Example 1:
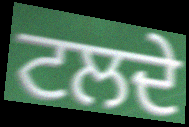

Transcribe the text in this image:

ਟਲਦੇ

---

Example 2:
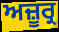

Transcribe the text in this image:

ਅਜ਼ੂਰ੍ਰ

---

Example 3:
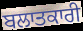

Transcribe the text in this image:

ਬਲਾਤਕਾਰੀ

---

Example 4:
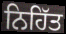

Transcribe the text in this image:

ਨਿਹਿੱਤ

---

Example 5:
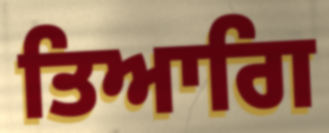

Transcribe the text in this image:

ਤਿਆਗਿ